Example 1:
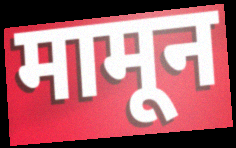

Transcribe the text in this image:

मामून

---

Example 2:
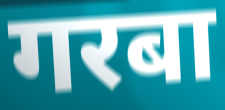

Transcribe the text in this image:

गरबा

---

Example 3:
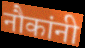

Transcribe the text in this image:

नौकांनी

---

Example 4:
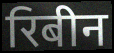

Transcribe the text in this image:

रिबीन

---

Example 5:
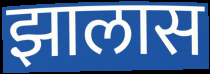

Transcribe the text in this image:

झालास